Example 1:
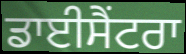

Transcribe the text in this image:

ਡਾਈਸੈਂਟਰਾ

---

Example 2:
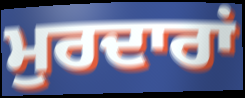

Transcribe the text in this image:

ਮੁਰਦਾਰਾਂ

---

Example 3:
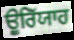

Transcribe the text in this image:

ਊਰਿੱਯਾਹ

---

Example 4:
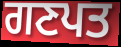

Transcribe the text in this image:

ਗਣਪਤ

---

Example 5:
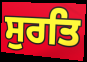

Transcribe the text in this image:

ਸੁਰਤਿ